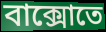
বাক্সোতে